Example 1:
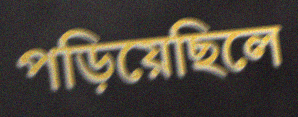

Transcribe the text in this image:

পড়িয়েছিলে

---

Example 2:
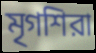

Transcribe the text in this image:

মৃগশিরা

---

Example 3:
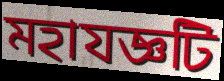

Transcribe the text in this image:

মহাযজ্ঞটি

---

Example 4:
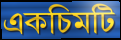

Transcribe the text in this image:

একচিমটি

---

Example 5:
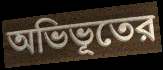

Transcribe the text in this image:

অভিভূতের